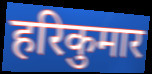
हरिकुमार